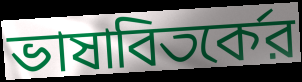
ভাষাবিতর্কের